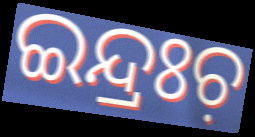
ଇନ୍ଦ୍ରଃଚ଼